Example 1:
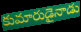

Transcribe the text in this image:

కుమారుడైనాడు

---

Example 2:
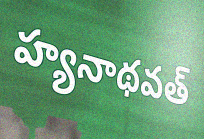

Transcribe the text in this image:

హ్యనాథవత్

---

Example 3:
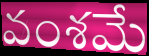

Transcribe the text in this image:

వంశమే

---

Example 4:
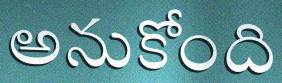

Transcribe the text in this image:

అనుకోంది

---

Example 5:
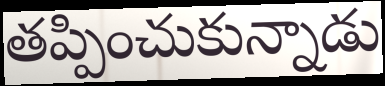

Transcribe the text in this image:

తప్పించుకున్నాడు